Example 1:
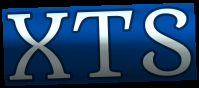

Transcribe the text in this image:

XTS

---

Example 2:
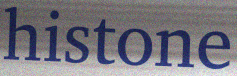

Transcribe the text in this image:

histone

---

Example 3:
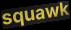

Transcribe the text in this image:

squawk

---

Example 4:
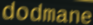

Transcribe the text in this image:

dodmane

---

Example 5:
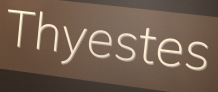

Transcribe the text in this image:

Thyestes